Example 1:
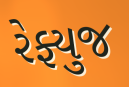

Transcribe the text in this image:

રેફ્યુજ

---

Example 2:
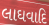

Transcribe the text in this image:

લાઘવાદિ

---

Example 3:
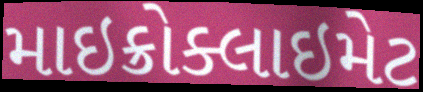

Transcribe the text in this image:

માઇક્રોક્લાઇમેટ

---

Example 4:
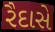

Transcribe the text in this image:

રૈદાસે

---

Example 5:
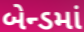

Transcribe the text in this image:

બેન્ડમાં